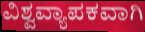
ವಿಶ್ವವ್ಯಾಪಕವಾಗಿ